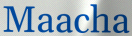
Maacha